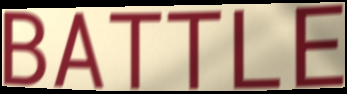
BATTLE